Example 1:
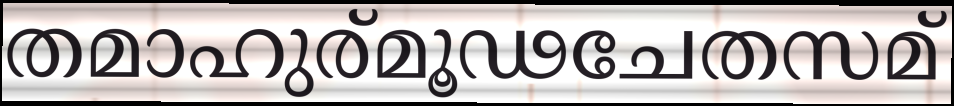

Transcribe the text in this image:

തമാഹുര്മൂഢചേതസമ്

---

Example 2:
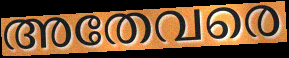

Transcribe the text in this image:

അതേവരെ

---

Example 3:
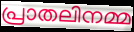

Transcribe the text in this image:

പ്രാതലിനമ്മ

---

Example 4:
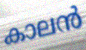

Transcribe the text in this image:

കാലൻ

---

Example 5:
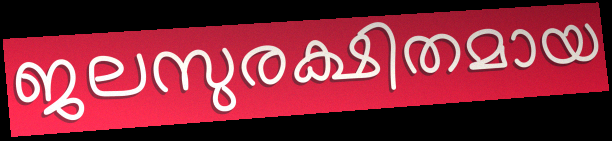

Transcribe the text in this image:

ജലസുരക്ഷിതമായ